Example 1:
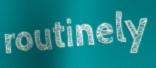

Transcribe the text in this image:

routinely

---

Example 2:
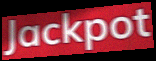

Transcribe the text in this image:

Jackpot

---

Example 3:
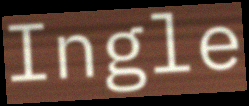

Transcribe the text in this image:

Ingle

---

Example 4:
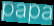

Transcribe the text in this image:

papa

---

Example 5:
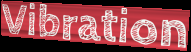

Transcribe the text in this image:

Vibration